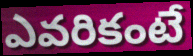
ఎవరికంటే